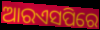
ଆରଏସପିରେ